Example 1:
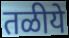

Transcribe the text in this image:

तळीये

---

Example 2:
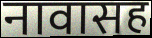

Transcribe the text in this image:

नावासह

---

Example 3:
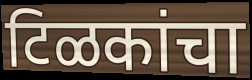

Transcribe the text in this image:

टिळकांचा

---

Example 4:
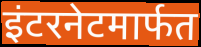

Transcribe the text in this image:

इंटरनेटमार्फत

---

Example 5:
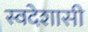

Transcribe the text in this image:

स्वदेशासी